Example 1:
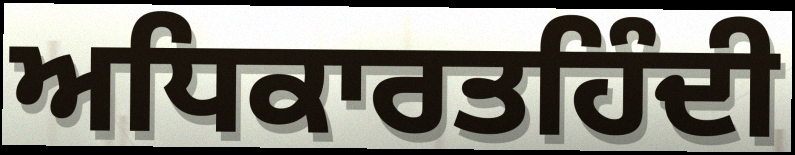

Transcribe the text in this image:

ਅਧਿਕਾਰਤਹਿੰਦੀ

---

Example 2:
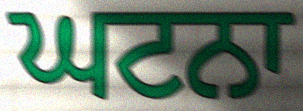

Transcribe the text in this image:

ਘਟਨਾ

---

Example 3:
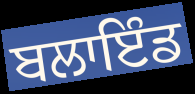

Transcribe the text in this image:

ਬਲਾਇੰਡ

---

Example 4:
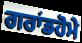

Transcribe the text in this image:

ਗਰਾਂਡਹੋਮੇ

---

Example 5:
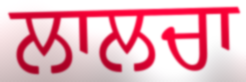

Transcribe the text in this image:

ਲਾਲਚਾ